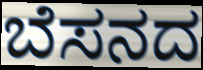
ಬೆಸನದ